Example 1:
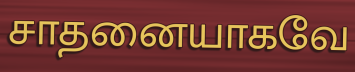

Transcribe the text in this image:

சாதனையாகவே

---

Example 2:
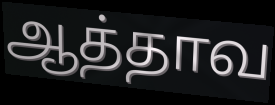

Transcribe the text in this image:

ஆத்தாவ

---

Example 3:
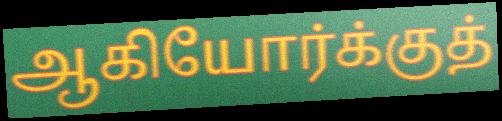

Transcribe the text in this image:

ஆகியோர்க்குத்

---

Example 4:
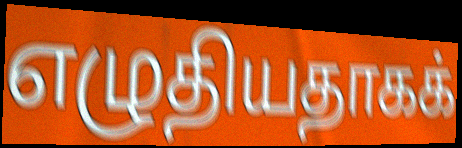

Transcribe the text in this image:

எழுதியதாகக்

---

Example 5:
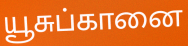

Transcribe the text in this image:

யூசுப்கானை